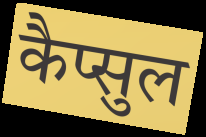
कैप्सुल